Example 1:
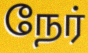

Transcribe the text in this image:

நேர்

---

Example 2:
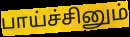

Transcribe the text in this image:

பாய்ச்சினும்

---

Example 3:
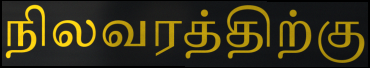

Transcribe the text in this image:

நிலவரத்திற்கு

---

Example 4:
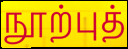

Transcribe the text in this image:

நூற்புத்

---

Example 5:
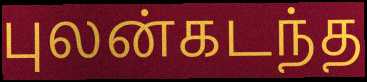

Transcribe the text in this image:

புலன்கடந்த